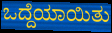
ಒದ್ದೆಯಾಯಿತು